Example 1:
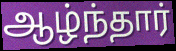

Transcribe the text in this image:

ஆழ்ந்தார்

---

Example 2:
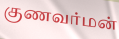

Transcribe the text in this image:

குணவர்மன்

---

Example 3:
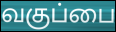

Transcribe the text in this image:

வகுப்பை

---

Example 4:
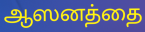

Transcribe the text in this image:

ஆஸனத்தை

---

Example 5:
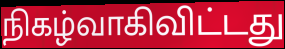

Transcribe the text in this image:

நிகழ்வாகிவிட்டது